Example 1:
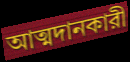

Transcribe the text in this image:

আত্মদানকারী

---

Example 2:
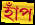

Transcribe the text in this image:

হাঁপ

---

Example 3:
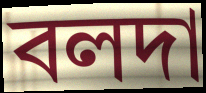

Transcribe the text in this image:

বলদা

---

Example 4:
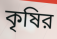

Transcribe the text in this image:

কৃষির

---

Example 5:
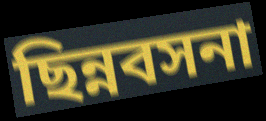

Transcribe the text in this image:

ছিন্নবসনা